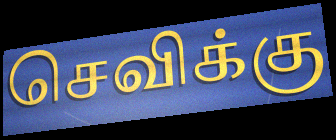
செவிக்கு